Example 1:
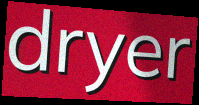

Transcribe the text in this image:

dryer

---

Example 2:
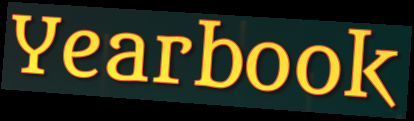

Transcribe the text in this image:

Yearbook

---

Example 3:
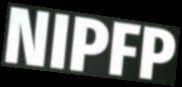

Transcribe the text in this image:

NIPFP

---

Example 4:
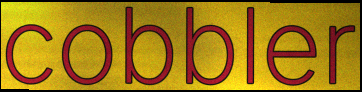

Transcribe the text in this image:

cobbler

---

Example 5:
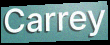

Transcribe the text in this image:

Carrey